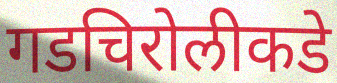
गडचिरोलीकडे